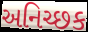
અનિચ્છક